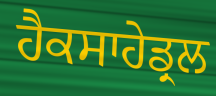
ਹੈਕਸਾਹੇਡ੍ਰਲ